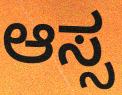
ಆಸ್ಸ